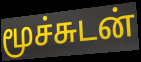
மூச்சுடன்